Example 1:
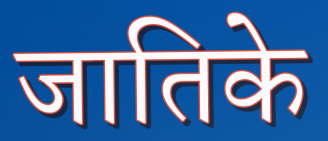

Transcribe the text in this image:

जातिके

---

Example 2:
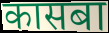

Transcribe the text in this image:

कासबा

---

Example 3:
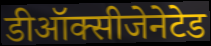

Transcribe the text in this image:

डीऑक्सीजेनेटेड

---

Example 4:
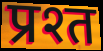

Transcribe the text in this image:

प्रश्त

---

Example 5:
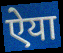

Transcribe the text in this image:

ऐया